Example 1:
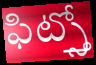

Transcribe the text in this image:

ఫిట్స్తో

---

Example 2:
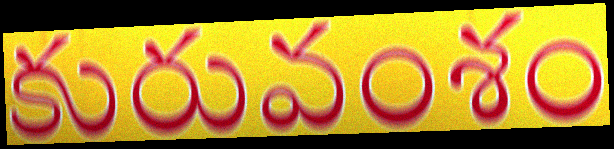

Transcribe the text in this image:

కురువంశం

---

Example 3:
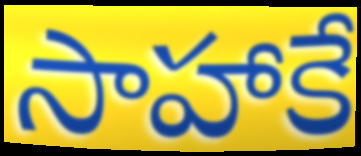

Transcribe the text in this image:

సాహాకే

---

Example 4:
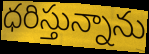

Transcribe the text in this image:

ధరిస్తున్నాను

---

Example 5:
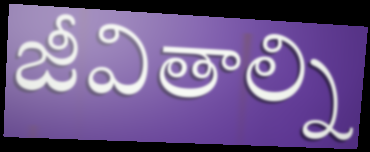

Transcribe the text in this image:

జీవితాల్ని